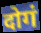
दोगं